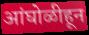
आंघोळीहून